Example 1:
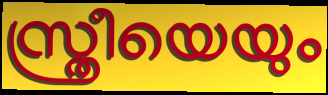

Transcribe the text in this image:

സ്ത്രീയെയും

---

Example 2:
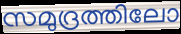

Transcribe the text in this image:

സമുദ്രത്തിലോ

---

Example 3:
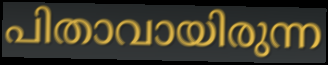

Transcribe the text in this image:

പിതാവായിരുന്ന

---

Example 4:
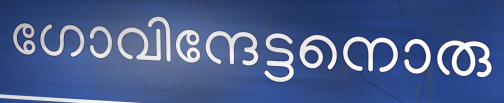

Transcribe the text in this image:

ഗോവിന്ദേട്ടനൊരു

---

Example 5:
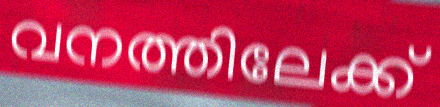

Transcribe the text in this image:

വനത്തിലേക്ക്